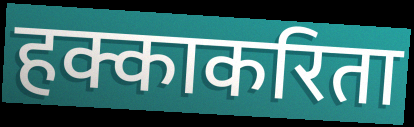
हक्काकरिता